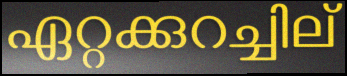
ഏറ്റക്കുറച്ചില്